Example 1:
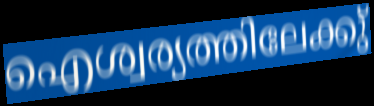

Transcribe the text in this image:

ഐശ്വര്യത്തിലേക്കു്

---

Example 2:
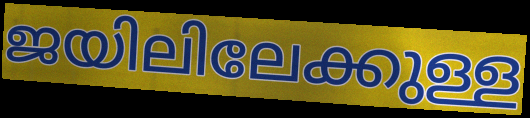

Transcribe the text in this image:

ജയിലിലേക്കുള്ള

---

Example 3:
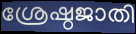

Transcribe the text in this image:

ശ്രേഷ്ഠജാതി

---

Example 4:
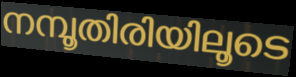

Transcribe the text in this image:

നമ്പൂതിരിയിലൂടെ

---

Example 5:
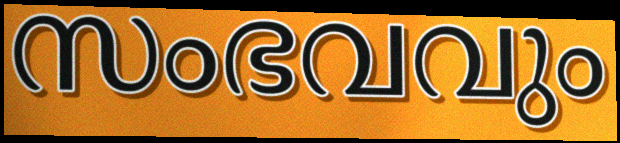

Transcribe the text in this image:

സംഭവവും